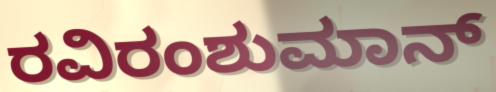
ರವಿರಂಶುಮಾನ್